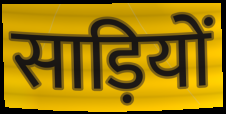
साड़ियों